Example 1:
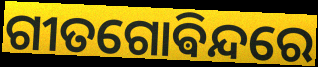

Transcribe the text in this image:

ଗୀତଗୋଵିନ୍ଦରେ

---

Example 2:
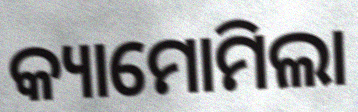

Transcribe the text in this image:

କ୍ୟାମୋମିଲା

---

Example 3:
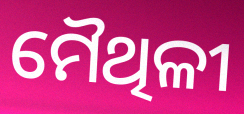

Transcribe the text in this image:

ମୈଥିଳୀ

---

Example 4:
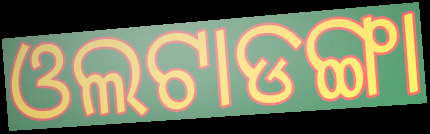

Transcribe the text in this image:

ଓଲଟାଡଙ୍ଗା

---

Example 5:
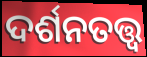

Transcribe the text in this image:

ଦର୍ଶନତତ୍ତ୍ଵ